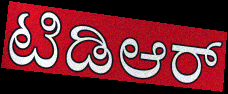
ಟಿಡಿಆರ್